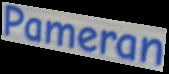
Pameran